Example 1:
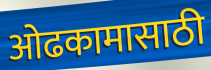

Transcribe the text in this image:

ओढकामासाठी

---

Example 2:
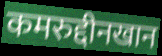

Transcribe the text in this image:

कमरुद्दीनखान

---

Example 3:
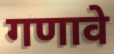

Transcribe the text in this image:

गणावे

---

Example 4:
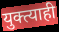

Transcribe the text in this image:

युक्त्याही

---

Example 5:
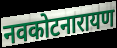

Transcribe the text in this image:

नवकोटनारायण